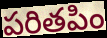
పరితపిం